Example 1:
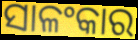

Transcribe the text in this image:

ସାଳଂକାର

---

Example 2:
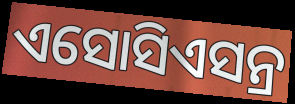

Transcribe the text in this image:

ଏସୋସିଏସନ୍ର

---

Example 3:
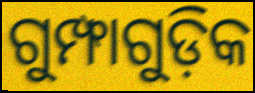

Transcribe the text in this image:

ଗୁମ୍ଫାଗୁଡ଼ିକ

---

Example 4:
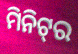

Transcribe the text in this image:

ମିନିଟ୍‌ର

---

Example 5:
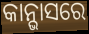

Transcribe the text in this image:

କାନ୍ଭାସରେ